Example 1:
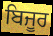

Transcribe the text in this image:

ਬਿਜੂਰ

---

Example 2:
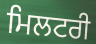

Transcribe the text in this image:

ਮਿਲਟਰੀ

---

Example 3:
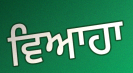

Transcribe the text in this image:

ਵਿਆਹਾ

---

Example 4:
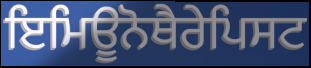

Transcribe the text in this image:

ਇਮਿਊਨੋਥੈਰੇਪਿਸਟ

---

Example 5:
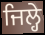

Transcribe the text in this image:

ਜਿਲ੍ਹੇ